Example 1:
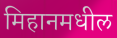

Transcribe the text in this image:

मिहानमधील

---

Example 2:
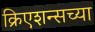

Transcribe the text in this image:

क्रिएशन्सच्या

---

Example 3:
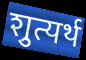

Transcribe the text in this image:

श्रुत्यर्थ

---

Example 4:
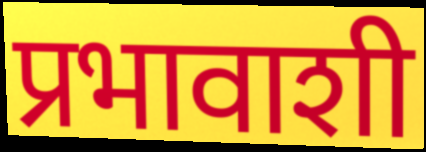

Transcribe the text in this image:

प्रभावाशी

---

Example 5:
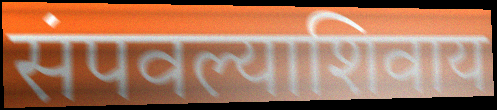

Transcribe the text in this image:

संपवल्याशिवाय